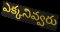
ఎక్కనివ్వరు